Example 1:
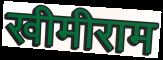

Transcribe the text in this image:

खीमीराम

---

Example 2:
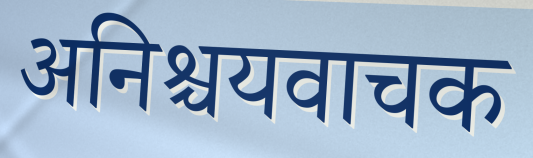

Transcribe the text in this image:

अनिश्चयवाचक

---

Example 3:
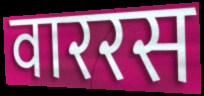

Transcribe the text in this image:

वाररस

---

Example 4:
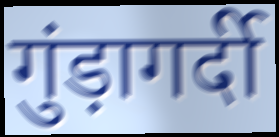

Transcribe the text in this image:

गुंड़ागर्दी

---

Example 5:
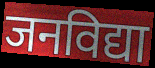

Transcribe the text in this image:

जनविद्या